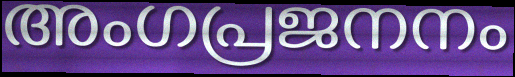
അംഗപ്രജനനം